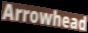
Arrowhead